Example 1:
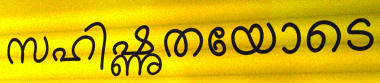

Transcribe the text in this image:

സഹിഷ്ണുതയോടെ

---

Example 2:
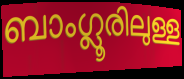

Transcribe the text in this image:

ബാംഗ്ലൂരിലുള്ള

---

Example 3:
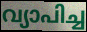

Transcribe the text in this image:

വ്യാപിച്ച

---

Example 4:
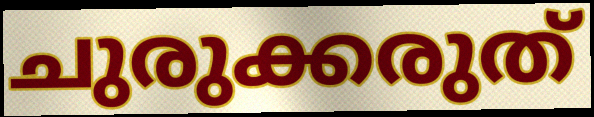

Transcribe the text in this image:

ചുരുക്കരുത്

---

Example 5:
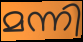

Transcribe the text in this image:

മന്നി